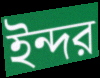
ইন্দর